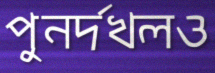
পুনর্দখলও